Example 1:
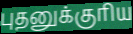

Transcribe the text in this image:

புதனுக்குரிய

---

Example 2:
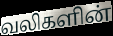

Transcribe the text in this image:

வலிகளின்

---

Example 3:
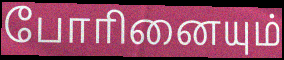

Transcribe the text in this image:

போரினையும்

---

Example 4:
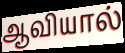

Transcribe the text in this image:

ஆவியால்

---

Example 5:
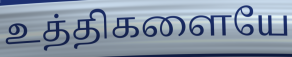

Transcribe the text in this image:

உத்திகளையே